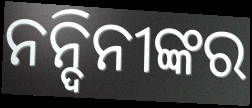
ନନ୍ଦିନୀଙ୍କର